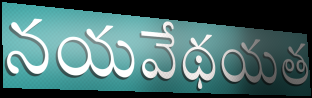
నయవేథయత